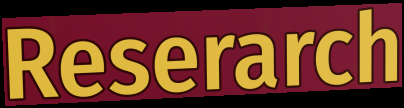
Reserarch